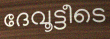
ദേവൂട്ടീടെ